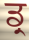
ਡ੍ਰ